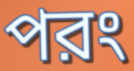
পরং